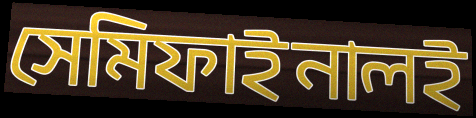
সেমিফাইনালই